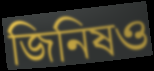
জিনিষও